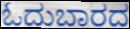
ಓದುಬಾರದ